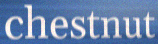
chestnut